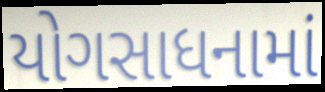
યોગસાધનામાં